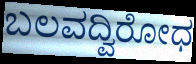
ಬಲವದ್ವಿರೋಧ